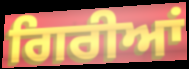
ਗਿਰੀਆਂ